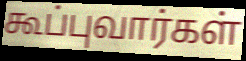
கூப்புவார்கள்